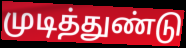
முடித்துண்டு